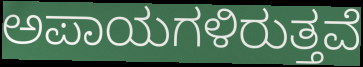
ಅಪಾಯಗಳಿರುತ್ತವೆ